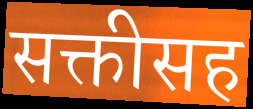
सक्तीसह